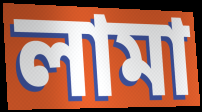
লামা